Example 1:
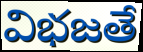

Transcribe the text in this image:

విభజతే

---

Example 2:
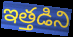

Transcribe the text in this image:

ఇత్తడిని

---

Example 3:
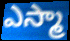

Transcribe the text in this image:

ఎస్మా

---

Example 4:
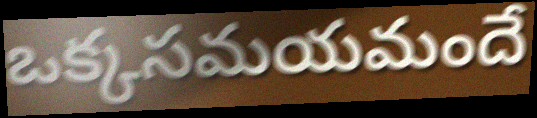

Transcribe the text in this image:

ఒక్కసమయమందే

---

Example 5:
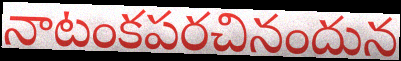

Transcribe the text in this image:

నాటంకపరచినందున